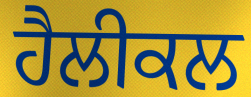
ਹੈਲੀਕਲ